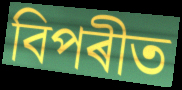
বিপৰীত